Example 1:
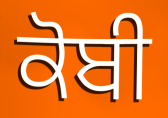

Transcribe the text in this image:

ਕੋਬੀ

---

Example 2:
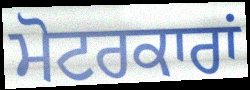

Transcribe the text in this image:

ਮੋਟਰਕਾਰਾਂ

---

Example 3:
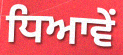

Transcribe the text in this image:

ਧਿਆਵੇਂ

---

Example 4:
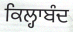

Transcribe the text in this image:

ਕਿਲ੍ਹਾਬੰਦ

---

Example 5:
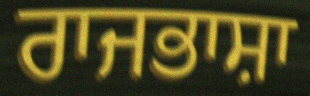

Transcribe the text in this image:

ਰਾਜਭਾਸ਼ਾ